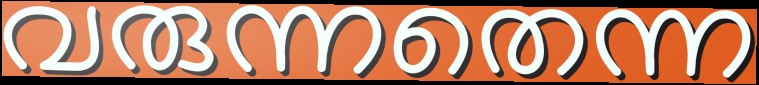
വരുന്നതെന്ന